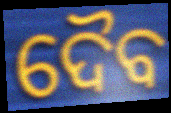
ଦୈବ